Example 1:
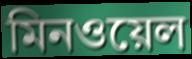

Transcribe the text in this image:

মিনওয়েল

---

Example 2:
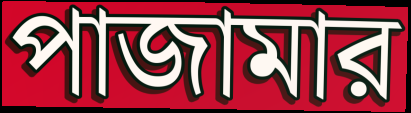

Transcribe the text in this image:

পাজামার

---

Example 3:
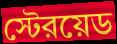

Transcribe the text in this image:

স্টেরয়েড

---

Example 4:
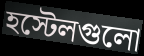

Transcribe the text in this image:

হস্টেলগুলো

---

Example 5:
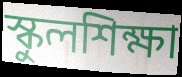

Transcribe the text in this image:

স্কুলশিক্ষা